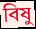
বিষু